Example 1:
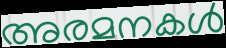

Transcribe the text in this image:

അരമനകൾ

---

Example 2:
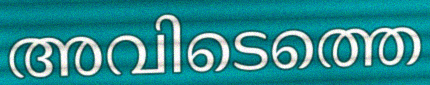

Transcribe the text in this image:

അവിടെത്തെ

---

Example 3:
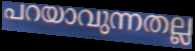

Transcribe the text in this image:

പറയാവുന്നതല്ല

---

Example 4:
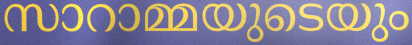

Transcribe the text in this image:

സാറാമ്മയുടെയും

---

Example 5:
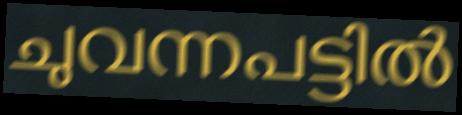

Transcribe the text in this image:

ചുവന്നപട്ടിൽ